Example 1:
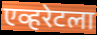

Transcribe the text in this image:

एव्हरेटला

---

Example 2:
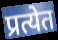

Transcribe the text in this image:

प्रत्येत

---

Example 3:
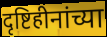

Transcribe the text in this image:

दृष्टिहीनांच्या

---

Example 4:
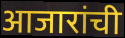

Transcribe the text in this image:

आजारांची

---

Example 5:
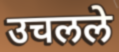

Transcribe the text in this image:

उचलले